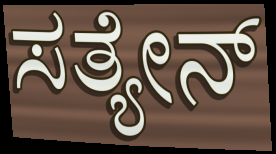
ಸತ್ಯೇನ್